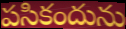
పసికందును